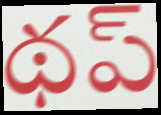
థప్